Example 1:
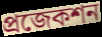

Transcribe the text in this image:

প্রজেকশন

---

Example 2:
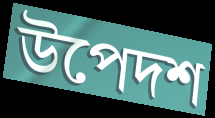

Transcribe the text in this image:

উপেদশ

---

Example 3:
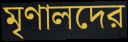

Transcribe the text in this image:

মৃণালদের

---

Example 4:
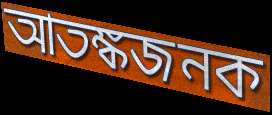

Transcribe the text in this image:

আতঙ্কজনক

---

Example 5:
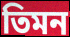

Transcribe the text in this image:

তিমন